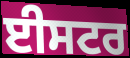
ਈਸਟਰ